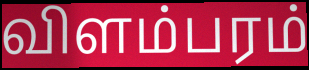
விளம்பரம்